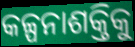
କଳ୍ପନାଶକ୍ତିକୁ